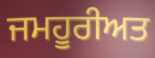
ਜਮਹੂਰੀਅਤ